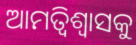
ଆମତ୍ବିଶ୍ୱାସକୁ